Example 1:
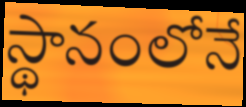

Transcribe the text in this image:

స్థానంలోనే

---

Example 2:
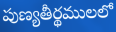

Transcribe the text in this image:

పుణ్యతీర్థములలో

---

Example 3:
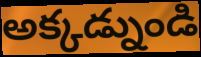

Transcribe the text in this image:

అక్కడ్నుండి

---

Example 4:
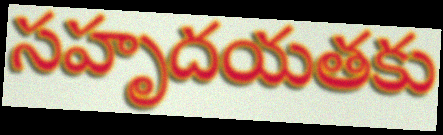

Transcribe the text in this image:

సహృదయతకు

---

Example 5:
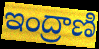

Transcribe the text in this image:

ఇంద్రాణి